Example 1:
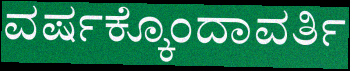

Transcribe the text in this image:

ವರ್ಷಕ್ಕೊಂದಾವರ್ತಿ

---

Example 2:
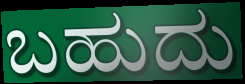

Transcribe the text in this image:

ಬಹುದು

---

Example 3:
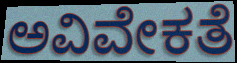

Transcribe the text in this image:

ಅವಿವೇಕತೆ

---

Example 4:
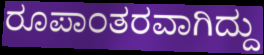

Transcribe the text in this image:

ರೂಪಾಂತರವಾಗಿದ್ದು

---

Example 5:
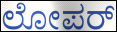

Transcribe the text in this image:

ಲೋಪರ್